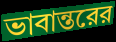
ভাবান্তরের